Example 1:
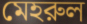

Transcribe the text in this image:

মেহরুল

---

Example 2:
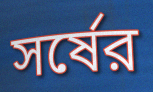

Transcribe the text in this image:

সর্ষের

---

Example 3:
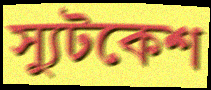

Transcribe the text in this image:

স্যুটকেশ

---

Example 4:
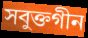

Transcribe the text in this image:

সবুক্তগীন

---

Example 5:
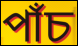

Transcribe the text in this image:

পাঁচ